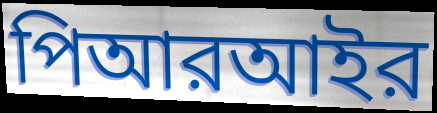
পিআরআইর